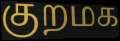
குறமக